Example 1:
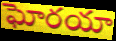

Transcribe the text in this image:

ఘోరయా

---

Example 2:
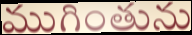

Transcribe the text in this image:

ముగింతును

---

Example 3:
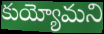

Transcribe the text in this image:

కుయ్యోమని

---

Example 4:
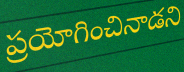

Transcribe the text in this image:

ప్రయోగించినాడని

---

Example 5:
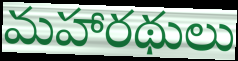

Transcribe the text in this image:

మహారథులు